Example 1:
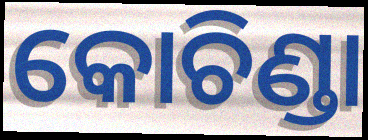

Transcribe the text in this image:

କୋଚିଣ୍ଡା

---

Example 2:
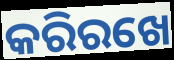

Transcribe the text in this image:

କରିରଖେ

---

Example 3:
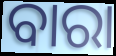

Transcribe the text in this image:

ବାରା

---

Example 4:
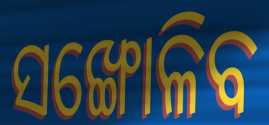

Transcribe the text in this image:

ସଙ୍ଖୋଳିବ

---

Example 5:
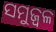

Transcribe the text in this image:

ସମୁଜ୍ୱଳ